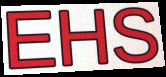
EHS